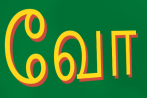
வோ